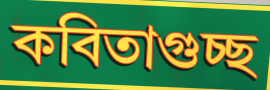
কবিতাগুচ্ছ